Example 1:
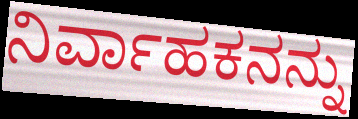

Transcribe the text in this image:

ನಿರ್ವಾಹಕನನ್ನು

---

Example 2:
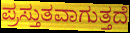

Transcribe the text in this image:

ಪ್ರಸ್ತುತವಾಗುತ್ತದೆ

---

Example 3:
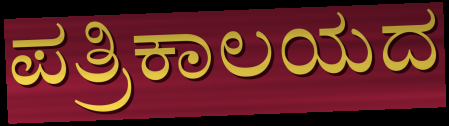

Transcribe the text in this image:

ಪತ್ರಿಕಾಲಯದ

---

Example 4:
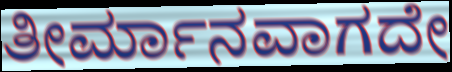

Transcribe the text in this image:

ತೀರ್ಮಾನವಾಗದೇ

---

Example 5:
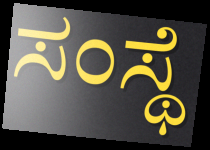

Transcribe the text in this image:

ಸಂಸ್ಥೆ